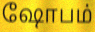
ஷோபம்